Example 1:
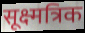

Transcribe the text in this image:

सूक्ष्मत्रिक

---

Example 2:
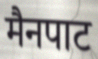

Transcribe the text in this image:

मैनपाट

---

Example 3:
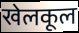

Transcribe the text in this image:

खेलकूल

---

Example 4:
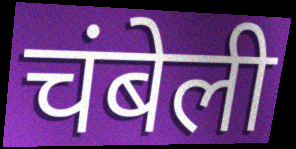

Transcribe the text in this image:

चंबेली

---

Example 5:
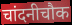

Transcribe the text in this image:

चांदनीचौक